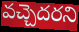
వచ్చెదరని